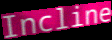
Incline